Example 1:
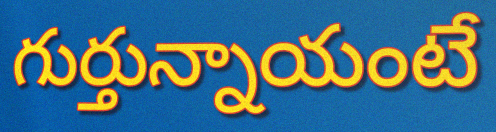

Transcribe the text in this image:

గుర్తున్నాయంటే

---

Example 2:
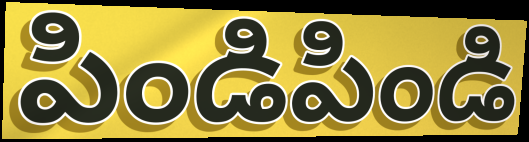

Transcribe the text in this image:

పిండిపిండి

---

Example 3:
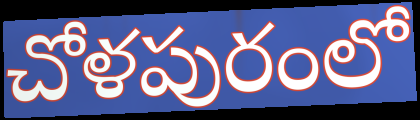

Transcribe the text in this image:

చోళపురంలో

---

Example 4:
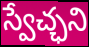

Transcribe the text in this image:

స్వేచ్ఛని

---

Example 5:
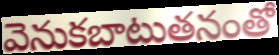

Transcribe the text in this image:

వెనుకబాటుతనంతో